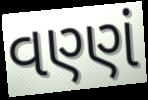
વણ્ણં